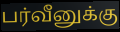
பர்வீனுக்கு